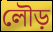
লৌড়